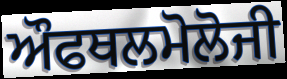
ਔਫਥਲਮੋਲੋਜੀ